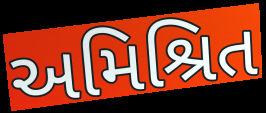
અમિશ્રિત